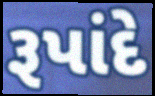
રૂપાંદે